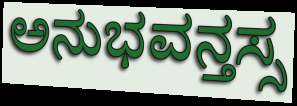
ಅನುಭವನ್ತಸ್ಸ